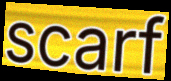
scarf